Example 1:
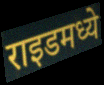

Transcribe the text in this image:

राइडमध्ये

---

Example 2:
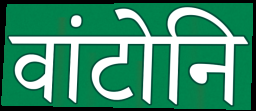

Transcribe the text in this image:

वांटोनि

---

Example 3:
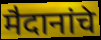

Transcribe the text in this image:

मैदानांचे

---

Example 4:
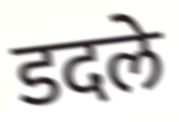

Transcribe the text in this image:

डदले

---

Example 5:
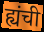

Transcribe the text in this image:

ह्यंची